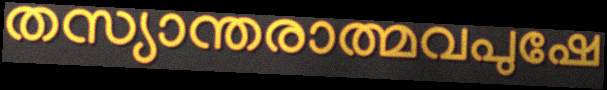
തസ്യാന്തരാത്മവപുഷേ